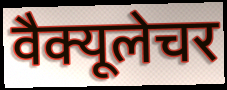
वैक्यूलेचर